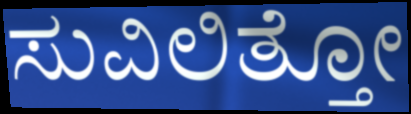
ಸುವಿಲಿತ್ತೋ